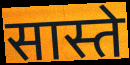
सास्ते